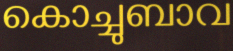
കൊച്ചുബാവ